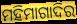
ମହିମାଗାଦିର